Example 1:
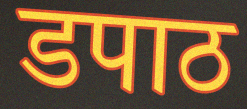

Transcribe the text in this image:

डपाठ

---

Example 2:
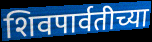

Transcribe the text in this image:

शिवपार्वतीच्या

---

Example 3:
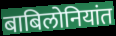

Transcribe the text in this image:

बाबिलोनियांत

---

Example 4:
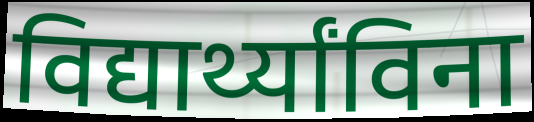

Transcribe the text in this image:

विद्यार्थ्यांविना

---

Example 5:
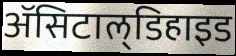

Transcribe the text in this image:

ॲसिटाल्डिहाइड